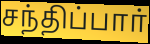
சந்திப்பார்